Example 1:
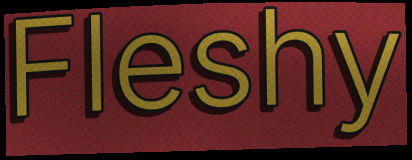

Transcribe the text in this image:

Fleshy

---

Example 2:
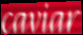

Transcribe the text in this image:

caviar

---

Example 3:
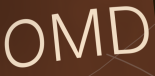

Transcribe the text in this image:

OMD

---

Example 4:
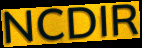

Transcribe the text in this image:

NCDIR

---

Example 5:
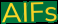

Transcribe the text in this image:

AIFs